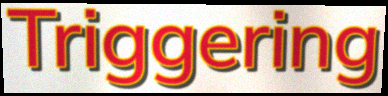
Triggering